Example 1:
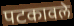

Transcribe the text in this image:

पटकावले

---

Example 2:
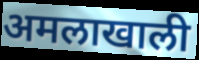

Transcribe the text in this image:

अमलाखाली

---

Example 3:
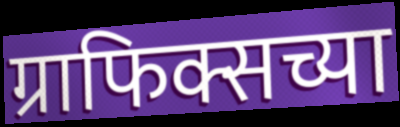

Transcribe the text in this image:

ग्राफिक्सच्या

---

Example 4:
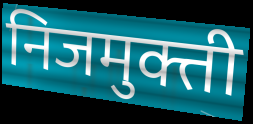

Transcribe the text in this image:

निजमुक्ती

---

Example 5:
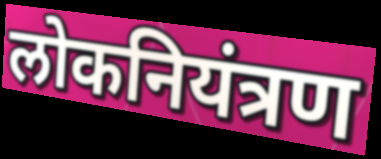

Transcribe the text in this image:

लोकनियंत्रण